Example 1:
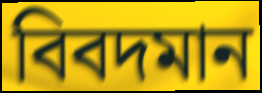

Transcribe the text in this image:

বিবদমান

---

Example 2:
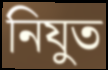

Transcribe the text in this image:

নিযুত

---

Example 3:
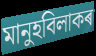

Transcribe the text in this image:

মানুহবিলাকৰ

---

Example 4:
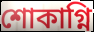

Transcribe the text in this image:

শোকাগ্নি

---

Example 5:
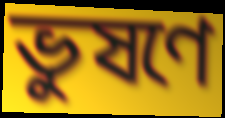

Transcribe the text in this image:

ভুষণে